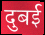
दुबई